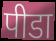
पीडा